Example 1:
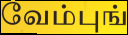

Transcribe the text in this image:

வேம்புங்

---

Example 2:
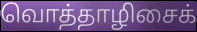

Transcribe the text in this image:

வொத்தாழிசைக்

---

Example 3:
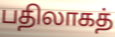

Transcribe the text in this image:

பதிலாகத்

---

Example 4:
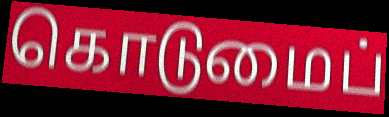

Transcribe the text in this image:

கொடுமைப்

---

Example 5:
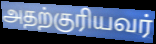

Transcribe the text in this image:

அதற்குரியவர்